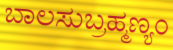
ಬಾಲಸುಬ್ರಹ್ಮಣ್ಯಂ